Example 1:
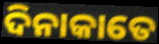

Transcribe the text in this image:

ଦିନାକାତେ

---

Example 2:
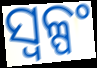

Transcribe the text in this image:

ସ୍ୱଳ୍ପଂ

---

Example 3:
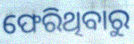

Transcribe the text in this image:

ଫେରିଥିବାରୁ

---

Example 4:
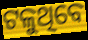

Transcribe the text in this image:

ଟଳୁଥିବେ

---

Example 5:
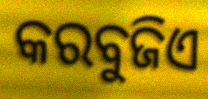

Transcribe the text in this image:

କରବୁଜିଏ